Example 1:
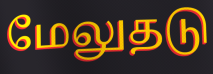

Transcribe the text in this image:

மேலுதடு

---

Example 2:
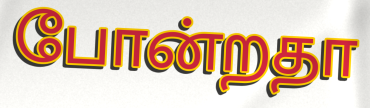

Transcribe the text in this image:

போன்றதா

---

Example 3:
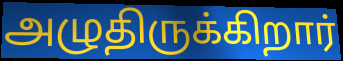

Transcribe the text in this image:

அழுதிருக்கிறார்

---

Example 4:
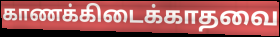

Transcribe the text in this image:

காணக்கிடைக்காதவை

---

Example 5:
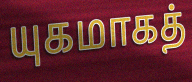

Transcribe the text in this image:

யுகமாகத்